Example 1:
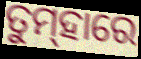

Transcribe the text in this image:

ତୁମ୍‌ହାରେ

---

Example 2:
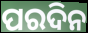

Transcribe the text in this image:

ପରଦିନ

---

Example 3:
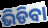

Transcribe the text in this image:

ଭିଡିବା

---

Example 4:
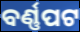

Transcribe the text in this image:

ବର୍ଣ୍ଣପଟ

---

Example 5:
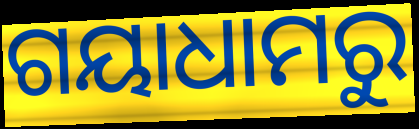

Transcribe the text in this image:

ଗୟାଧାମରୁ